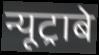
न्यूट्राबे